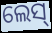
ଲେସ୍